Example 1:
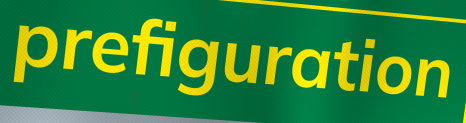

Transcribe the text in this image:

prefiguration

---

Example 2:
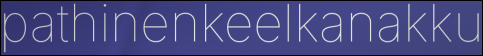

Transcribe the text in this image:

pathinenkeelkanakku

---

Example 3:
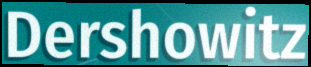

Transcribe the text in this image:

Dershowitz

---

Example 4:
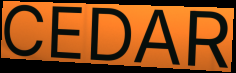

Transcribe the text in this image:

CEDAR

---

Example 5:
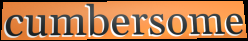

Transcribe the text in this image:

cumbersome